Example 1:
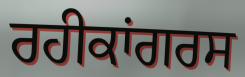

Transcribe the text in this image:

ਰਹੀਕਾਂਗਰਸ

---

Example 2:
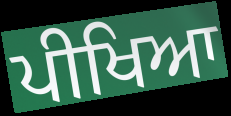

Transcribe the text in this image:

ਪੀਖਿਆ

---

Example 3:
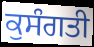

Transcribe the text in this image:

ਕੁਸੰਗਤੀ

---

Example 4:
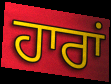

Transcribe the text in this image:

ਹਾਰਾਂ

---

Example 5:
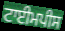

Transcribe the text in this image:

ਟਾਈਮਪੀਸ